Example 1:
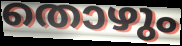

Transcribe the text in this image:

തൊഴും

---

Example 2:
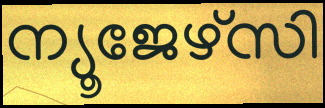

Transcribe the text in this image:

ന്യൂജേഴ്സി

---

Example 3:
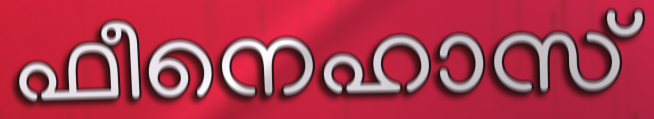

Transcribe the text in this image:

ഫീനെഹാസ്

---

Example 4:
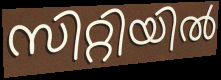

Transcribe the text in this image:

സിറ്റിയിൽ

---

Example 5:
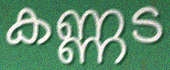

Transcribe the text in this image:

കണ്ണട